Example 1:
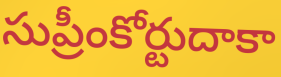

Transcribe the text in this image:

సుప్రీంకోర్టుదాకా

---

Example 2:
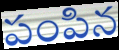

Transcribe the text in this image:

పంపిన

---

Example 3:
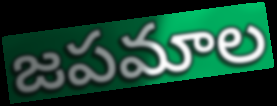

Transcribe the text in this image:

జపమాల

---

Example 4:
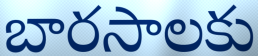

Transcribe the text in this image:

బారసాలకు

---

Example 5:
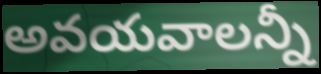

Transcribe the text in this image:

అవయవాలన్నీ